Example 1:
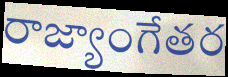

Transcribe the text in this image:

రాజ్యాంగేతర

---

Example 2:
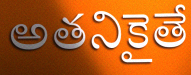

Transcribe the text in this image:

అతనికైతే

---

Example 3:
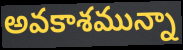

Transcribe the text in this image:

అవకాశమున్నా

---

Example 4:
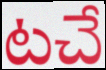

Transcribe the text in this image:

టచే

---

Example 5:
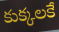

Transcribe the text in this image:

కుక్కలకే